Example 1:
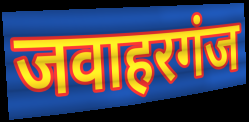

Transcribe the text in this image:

जवाहरगंज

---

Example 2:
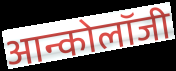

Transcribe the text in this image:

आन्कोलॉजी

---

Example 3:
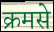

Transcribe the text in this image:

क्रमसे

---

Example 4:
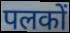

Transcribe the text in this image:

पलकों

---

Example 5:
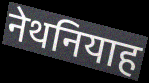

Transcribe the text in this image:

नेथनियाह